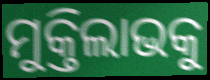
ମୁକ୍ତିଲାଭକୁ